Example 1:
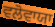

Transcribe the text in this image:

ਵਲੋਵਾਯਾ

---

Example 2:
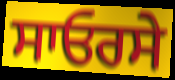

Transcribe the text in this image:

ਸਾਓਰਸੇ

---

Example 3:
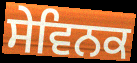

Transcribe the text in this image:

ਸੇਵਿਨਕ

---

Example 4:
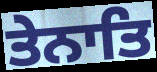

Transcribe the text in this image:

ਤੇਨਾਤਿ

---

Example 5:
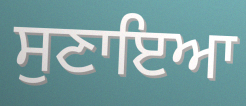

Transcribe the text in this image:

ਸੁਣਾਇਆ